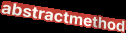
abstractmethod